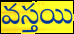
వస్తయి